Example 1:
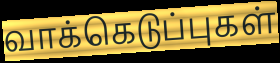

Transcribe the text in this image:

வாக்கெடுப்புகள்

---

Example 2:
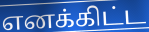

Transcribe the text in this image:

எனக்கிட்ட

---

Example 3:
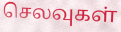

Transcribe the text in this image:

செலவுகள்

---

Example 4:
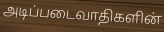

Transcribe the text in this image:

அடிப்படைவாதிகளின்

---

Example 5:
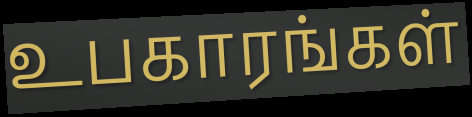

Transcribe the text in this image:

உபகாரங்கள்